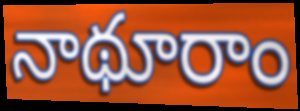
నాథూరాం